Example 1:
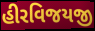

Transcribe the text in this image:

હીરવિજયજી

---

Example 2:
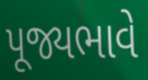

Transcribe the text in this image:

પૂજ્યભાવે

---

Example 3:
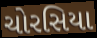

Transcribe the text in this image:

ચોરસિયા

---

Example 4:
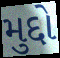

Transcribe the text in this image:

મુદ્દો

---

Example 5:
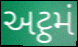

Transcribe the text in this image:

અટ્ઠમં